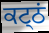
ਕਟ੍ਠਂ